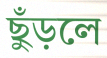
ছুঁড়লে